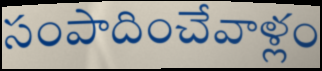
సంపాదించేవాళ్లం